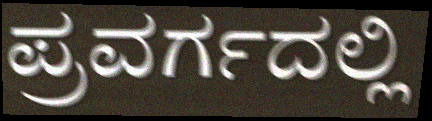
ಪ್ರವರ್ಗದಲ್ಲಿ